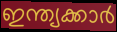
ഇന്ത്യക്കാർ